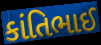
કાંતિભાઈ